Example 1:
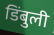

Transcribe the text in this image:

डिंबुली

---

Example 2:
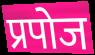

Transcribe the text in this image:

प्रपोज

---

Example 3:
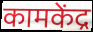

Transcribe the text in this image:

कामकेंद्र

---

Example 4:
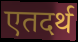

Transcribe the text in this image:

एतदर्थ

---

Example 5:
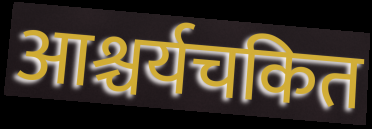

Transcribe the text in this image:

आश्चर्यचकित